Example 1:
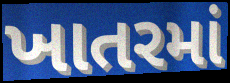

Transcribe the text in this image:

ખાતરમાં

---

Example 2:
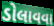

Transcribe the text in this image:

ડોલાવવા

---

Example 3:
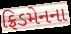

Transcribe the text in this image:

ફ્રિડમેનના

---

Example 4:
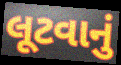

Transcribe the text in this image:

લૂટવાનું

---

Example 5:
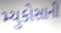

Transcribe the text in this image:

મ્યુકોસાની